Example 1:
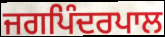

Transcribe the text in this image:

ਜਗਪਿੰਦਰਪਾਲ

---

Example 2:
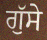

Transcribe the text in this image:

ਗੁੱਸੇ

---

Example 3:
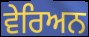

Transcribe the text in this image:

ਵੇਰਿਅਨ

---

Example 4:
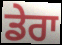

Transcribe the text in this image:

ਡੇਰਾ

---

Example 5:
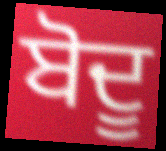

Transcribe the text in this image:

ਬੋਦੂ